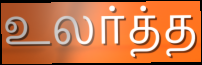
உலர்த்த